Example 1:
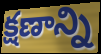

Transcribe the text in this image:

క్షణాన్ని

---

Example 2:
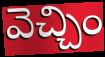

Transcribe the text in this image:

వెచ్చిం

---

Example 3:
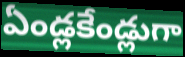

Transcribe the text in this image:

ఏండ్లకేండ్లుగా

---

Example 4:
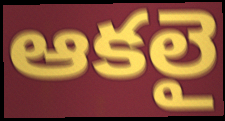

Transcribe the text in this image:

ఆకలై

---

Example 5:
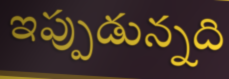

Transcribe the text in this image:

ఇప్పుడున్నది